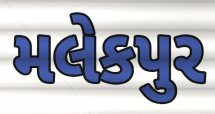
મલેકપુર